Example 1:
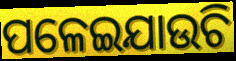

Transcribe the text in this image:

ପଳେଇଯାଉଚି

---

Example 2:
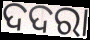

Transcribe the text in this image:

ଦଦରା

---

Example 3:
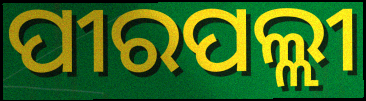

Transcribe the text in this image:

ପୀରପଲ୍ଲୀ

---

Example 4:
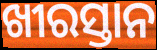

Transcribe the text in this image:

ଖୀରସ୍ତାନ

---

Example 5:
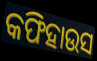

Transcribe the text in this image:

କଫିହାଉସ